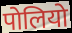
पोलियो